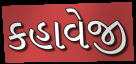
કહાવેજી